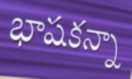
భాషకన్నా